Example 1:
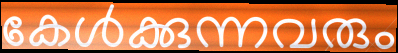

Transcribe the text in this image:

കേൾക്കുന്നവരും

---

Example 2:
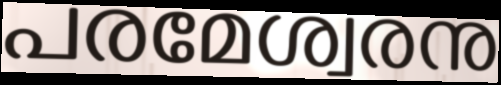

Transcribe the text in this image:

പരമേശ്വരനു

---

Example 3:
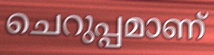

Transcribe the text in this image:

ചെറുപ്പമാണ്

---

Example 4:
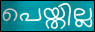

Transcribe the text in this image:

പെയ്തില്ല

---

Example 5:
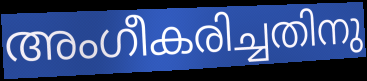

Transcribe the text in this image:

അംഗീകരിച്ചതിനു